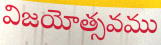
విజయోత్సవము